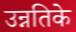
उन्नतिके